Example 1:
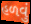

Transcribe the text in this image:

હળવું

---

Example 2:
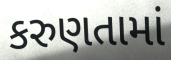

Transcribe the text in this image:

કરુણતામાં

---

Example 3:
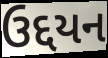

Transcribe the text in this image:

ઉદ્દયન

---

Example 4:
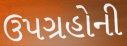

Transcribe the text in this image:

ઉપગ્રહોની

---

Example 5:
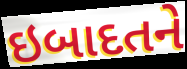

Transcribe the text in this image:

ઇબાદતને